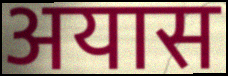
अयास